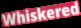
Whiskered